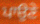
ਪਾਉਣੇ